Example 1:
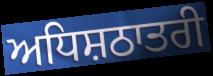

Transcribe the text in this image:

ਅਧਿਸ਼ਠਾਤਰੀ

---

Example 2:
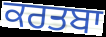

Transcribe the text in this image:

ਕਰਤਬਾ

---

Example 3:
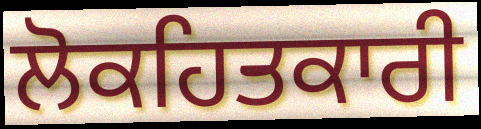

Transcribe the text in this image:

ਲੋਕਹਿਤਕਾਰੀ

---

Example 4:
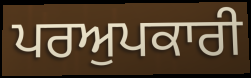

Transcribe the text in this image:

ਪਰਅੁਪਕਾਰੀ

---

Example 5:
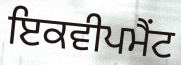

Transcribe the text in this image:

ਇਕਵੀਪਮੈਂਟ